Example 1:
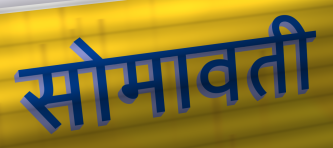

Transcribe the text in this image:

सोमावती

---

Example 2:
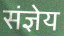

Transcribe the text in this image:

संज्ञेय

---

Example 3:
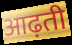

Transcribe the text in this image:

आढ़ती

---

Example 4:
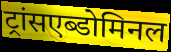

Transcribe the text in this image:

ट्रांसएब्डोमिनल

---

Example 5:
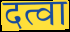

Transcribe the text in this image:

दत्वा